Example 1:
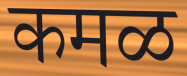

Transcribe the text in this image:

कमळ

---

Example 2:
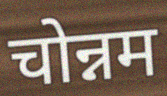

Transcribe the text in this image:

चोन्नम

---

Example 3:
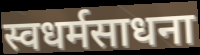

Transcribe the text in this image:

स्वधर्मसाधना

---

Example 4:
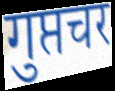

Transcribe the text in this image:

गुप्तचर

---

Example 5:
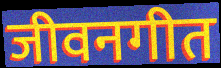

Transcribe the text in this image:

जीवनगीत